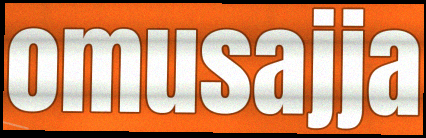
omusajja